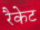
रैकेट